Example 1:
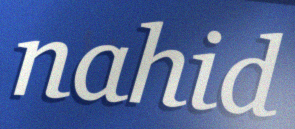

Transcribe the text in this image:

nahid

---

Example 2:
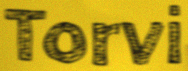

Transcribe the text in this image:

Torvi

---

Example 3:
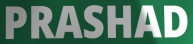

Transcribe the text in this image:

PRASHAD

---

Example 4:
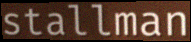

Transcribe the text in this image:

stallman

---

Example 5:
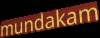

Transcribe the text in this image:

mundakam